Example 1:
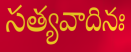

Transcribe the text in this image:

సత్యవాదినః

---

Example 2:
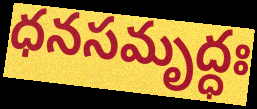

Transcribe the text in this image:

ధనసమృద్ధః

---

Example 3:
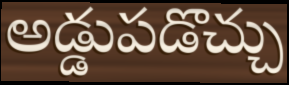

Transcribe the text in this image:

అడ్డుపడొచ్చు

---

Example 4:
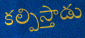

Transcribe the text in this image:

కల్పిస్తాడు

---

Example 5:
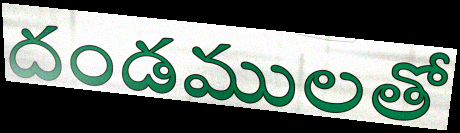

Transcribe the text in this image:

దండములతో